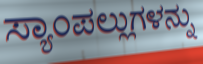
ಸ್ಯಾಂಪಲ್ಲುಗಳನ್ನು